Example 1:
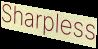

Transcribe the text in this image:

Sharpless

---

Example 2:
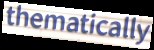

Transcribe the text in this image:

thematically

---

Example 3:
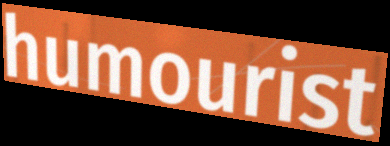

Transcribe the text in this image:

humourist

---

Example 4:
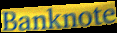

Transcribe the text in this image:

Banknote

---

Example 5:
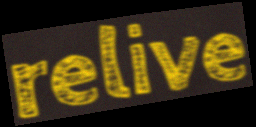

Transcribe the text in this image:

relive